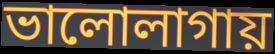
ভালোলাগায়